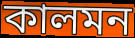
কালমন